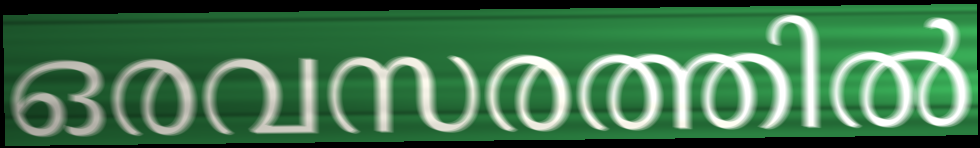
ഒരവസരത്തിൽ